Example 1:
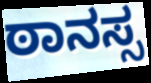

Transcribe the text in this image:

ಠಾನಸ್ಸ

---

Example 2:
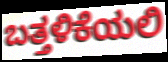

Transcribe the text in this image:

ಬತ್ತಳಿಕೆಯಲಿ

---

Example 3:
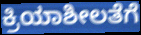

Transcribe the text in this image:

ಕ್ರಿಯಾಶೀಲತೆಗೆ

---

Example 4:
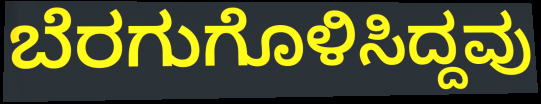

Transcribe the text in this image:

ಬೆರಗುಗೊಳಿಸಿದ್ದವು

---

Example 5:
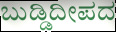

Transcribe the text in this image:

ಬುಡ್ಡಿದೀಪದ